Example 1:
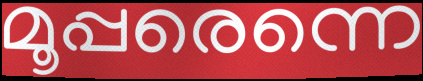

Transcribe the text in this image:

മൂപ്പരെന്നെ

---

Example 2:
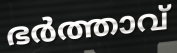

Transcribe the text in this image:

ഭർത്താവ്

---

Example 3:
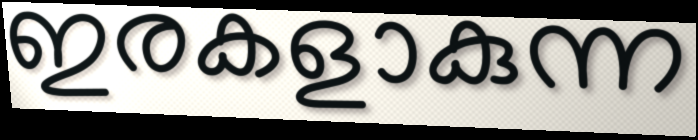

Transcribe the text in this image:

ഇരകളാകുന്ന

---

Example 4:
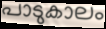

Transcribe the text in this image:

പാടുകാലം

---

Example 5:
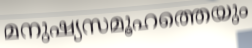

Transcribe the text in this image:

മനുഷ്യസമൂഹത്തെയും